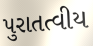
પુરાતત્વીય